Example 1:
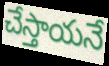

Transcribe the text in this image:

చేస్తాయనే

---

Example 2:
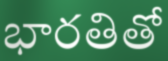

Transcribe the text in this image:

భారతితో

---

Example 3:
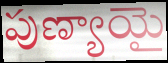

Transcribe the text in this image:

పుణ్యాయై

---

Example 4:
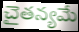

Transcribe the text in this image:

చైతన్యమే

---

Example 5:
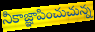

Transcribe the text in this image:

నీకాజ్ఞాపించుచున్న